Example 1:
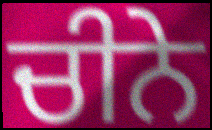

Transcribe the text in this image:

ਚੀਨੇ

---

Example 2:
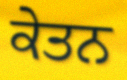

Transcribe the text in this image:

ਕੇਤਨ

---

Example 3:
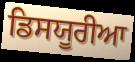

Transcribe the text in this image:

ਡਿਸਯੂਰੀਆ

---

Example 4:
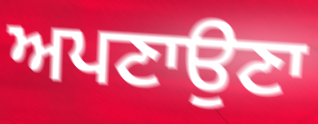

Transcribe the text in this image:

ਅਪਣਾਉਣਾ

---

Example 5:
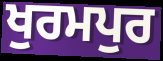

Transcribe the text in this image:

ਖੁਰਮਪੁਰ